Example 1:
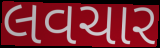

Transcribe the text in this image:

લવચાર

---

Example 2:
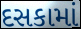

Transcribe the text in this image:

દસકામાં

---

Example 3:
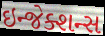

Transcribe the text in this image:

ઇન્જેક્શન્સ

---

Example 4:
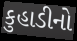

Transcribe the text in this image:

કુહાડીનો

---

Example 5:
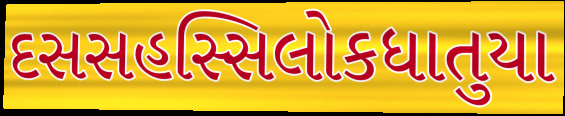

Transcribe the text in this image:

દસસહસ્સિલોકધાતુયા